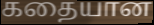
கதையான